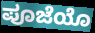
ಪೂಜೆಯೊ